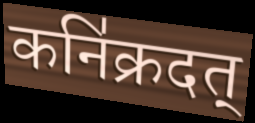
कनि॑क्रदत्